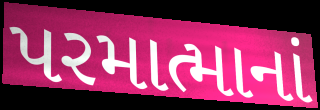
પરમાત્માનાં